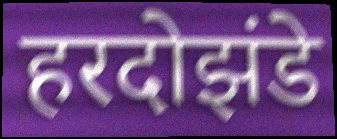
हरदोझंडे